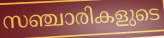
സഞ്ചാരികളുടെ